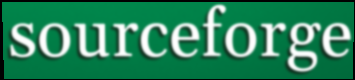
sourceforge